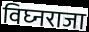
विघ्नराजा